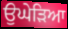
ਉਘੇੜਿਆ